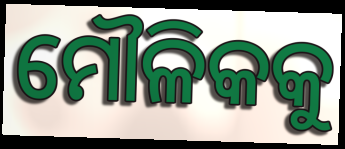
ମୌଳିକକୁ